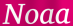
Noaa